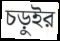
চড়ুইর